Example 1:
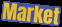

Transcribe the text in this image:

Market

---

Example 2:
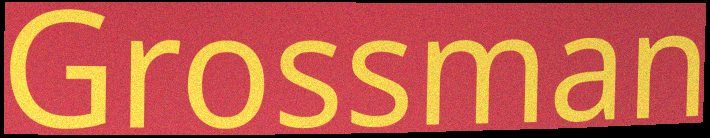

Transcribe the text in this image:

Grossman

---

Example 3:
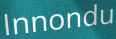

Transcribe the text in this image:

Innondu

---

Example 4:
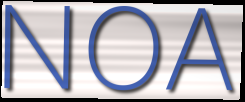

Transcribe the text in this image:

NOA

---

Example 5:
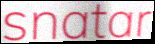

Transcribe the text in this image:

snatar